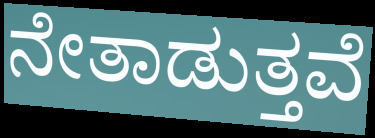
ನೇತಾಡುತ್ತವೆ